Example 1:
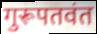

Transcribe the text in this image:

गुरूपतवंत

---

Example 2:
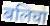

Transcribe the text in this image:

बलिचा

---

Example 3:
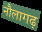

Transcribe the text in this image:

नौलागढ़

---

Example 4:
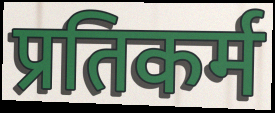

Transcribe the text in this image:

प्रतिकर्म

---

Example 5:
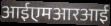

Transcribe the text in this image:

आईएमआरआई